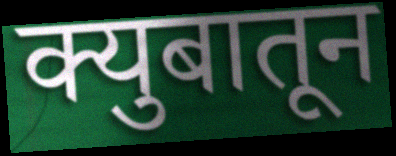
क्युबातून